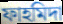
ফাহমিদা